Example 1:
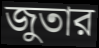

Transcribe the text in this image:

জুতার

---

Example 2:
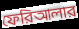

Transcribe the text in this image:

ফেরিআলার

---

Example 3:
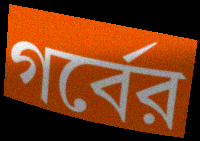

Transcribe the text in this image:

গর্বের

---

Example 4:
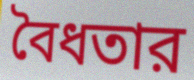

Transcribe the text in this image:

বৈধতার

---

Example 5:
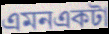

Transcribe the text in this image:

এমনএকটা